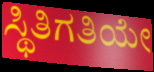
ಸ್ಥಿತಿಗತಿಯೇ